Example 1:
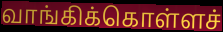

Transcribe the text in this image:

வாங்கிக்கொள்ளச்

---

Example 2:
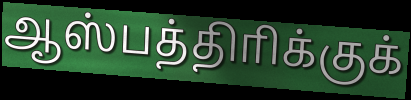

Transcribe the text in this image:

ஆஸ்பத்திரிக்குக்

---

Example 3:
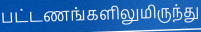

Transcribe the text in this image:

பட்டணங்களிலுமிருந்து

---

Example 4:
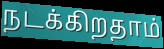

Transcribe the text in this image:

நடக்கிறதாம்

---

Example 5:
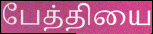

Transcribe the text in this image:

பேத்தியை